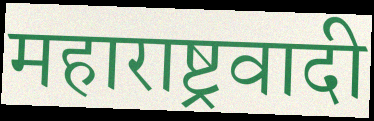
महाराष्ट्रवादी